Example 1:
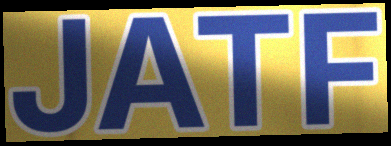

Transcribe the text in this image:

JATF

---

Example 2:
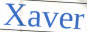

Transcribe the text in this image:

Xaver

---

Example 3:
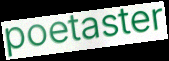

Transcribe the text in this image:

poetaster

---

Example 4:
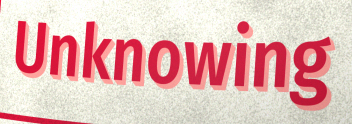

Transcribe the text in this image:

Unknowing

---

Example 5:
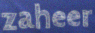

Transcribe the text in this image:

zaheer